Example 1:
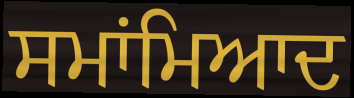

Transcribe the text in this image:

ਸਮਾਂਮਿਆਦ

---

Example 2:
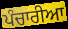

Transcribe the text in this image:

ਪੰਚਾਰੀਆ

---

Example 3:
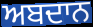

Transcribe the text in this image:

ਅਬਦਾਨ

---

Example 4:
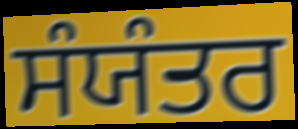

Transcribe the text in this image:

ਸੰਯੰਤਰ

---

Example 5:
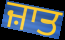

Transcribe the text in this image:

ਜ਼ਾਤ